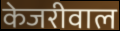
केजरीवाल